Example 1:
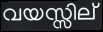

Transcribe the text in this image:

വയസ്സില്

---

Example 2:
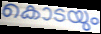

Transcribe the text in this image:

കൊടയും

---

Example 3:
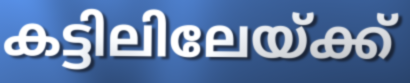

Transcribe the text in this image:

കട്ടിലിലേയ്ക്ക്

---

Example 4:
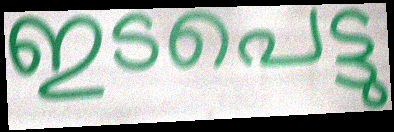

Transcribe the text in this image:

ഇടപെട്ടു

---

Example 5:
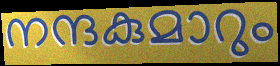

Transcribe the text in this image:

നന്ദകുമാറും